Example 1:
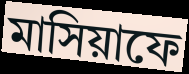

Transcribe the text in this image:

মাসিয়াফে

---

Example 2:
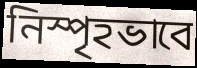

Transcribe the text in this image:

নিস্পৃহভাবে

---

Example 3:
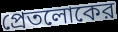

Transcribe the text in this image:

প্রেতলোকের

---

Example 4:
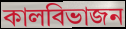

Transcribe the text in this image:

কালবিভাজন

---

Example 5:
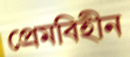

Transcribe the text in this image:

প্রেমবিহীন